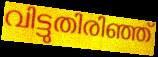
വിട്ടുതിരിഞ്ഞ്